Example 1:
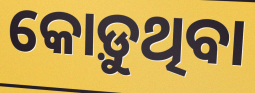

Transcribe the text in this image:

କୋଡ଼ୁଥିବା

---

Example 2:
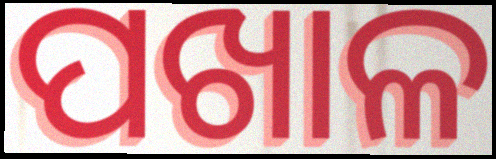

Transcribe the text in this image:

ପଖାଳ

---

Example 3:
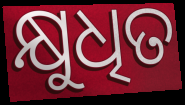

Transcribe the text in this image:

କ୍ଷୁଧିତ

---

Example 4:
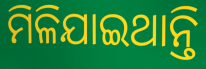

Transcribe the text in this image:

ମିଳିଯାଇଥାନ୍ତି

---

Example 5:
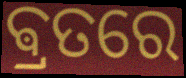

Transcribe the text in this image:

ଵ୍ରତରେ